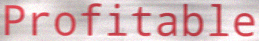
Profitable